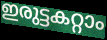
ഇരുട്ടകറ്റാം